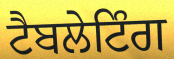
ਟੈਬਲੇਟਿੰਗ